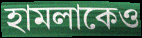
হামলাকেও